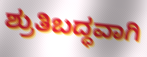
ಶ್ರುತಿಬದ್ಧವಾಗಿ